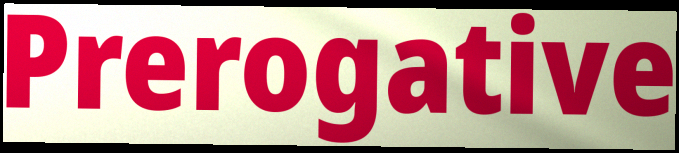
Prerogative